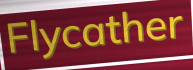
Flycather